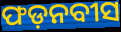
ଫଡ଼ନବୀସ